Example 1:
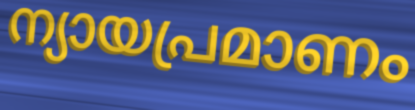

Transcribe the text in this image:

ന്യായപ്രമാണം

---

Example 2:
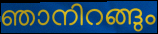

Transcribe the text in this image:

ഞാനിറങ്ങും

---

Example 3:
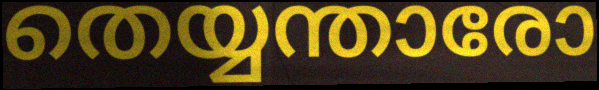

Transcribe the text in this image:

തെയ്യന്താരോ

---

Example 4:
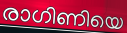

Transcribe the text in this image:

രാഗിണിയെ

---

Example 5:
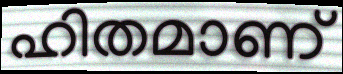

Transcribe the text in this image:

ഹിതമാണ്